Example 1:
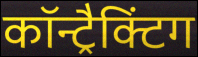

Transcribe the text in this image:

कॉन्ट्रैक्टिंग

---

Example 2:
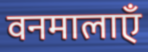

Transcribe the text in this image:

वनमालाएँ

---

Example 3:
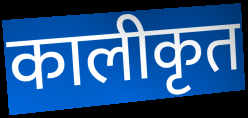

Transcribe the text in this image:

कालीकृत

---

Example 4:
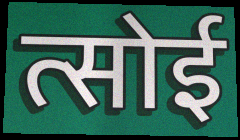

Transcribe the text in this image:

त्सोई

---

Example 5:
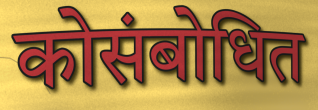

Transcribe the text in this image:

कोसंबोधित